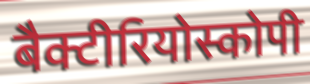
बैक्टीरियोस्कोपी